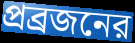
প্রব্রজনের